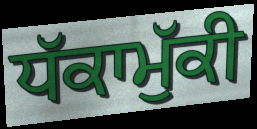
ਧੱਕਾਮੁੱਕੀ